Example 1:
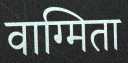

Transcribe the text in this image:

वाग्मिता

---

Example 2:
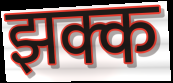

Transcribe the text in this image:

झक्क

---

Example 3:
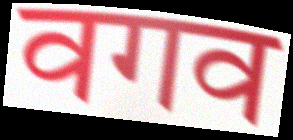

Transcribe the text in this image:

वगव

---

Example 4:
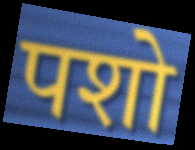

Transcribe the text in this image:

पशो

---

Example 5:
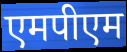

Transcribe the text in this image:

एमपीएम